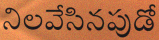
నిలవేసినపుడో